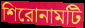
শিরোনামটি